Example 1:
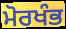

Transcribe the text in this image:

ਮੋਰਖੰਭ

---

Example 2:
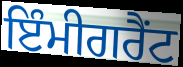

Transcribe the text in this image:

ਇੰਮੀਗਰੈਂਟ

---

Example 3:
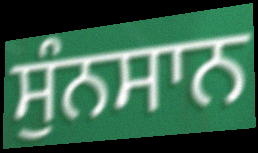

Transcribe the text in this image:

ਸੁੰਨਸਾਨ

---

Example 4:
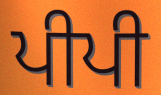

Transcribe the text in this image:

ਪੀਪੀ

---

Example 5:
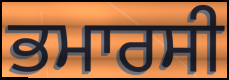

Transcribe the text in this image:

ਭਮਾਰਸੀ